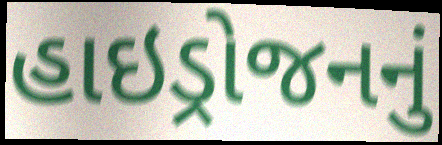
હાઇડ્રોજનનું